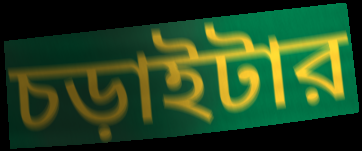
চড়াইটার